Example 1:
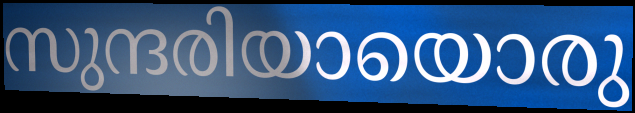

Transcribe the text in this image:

സുന്ദരിയായൊരു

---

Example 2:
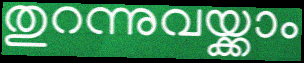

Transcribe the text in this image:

തുറന്നുവയ്ക്കാം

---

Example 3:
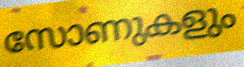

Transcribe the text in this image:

സോണുകളും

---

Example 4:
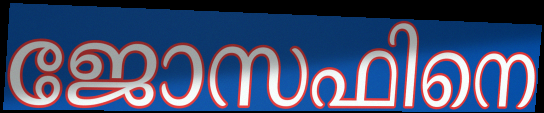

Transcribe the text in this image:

ജോസഫിനെ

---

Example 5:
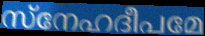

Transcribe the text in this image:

സ്നേഹദീപമേ